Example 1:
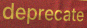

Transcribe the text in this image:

deprecate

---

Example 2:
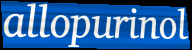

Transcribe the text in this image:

allopurinol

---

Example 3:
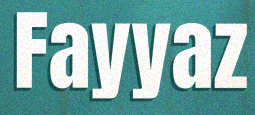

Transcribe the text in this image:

Fayyaz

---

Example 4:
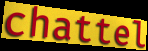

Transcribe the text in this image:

chattel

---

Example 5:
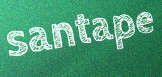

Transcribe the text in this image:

santape